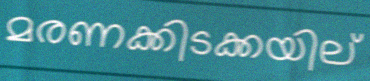
മരണക്കിടക്കയില്